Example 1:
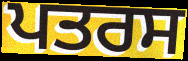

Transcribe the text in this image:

ਪਤਰਸ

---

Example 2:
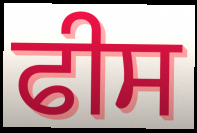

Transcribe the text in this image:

ਫੀਸ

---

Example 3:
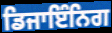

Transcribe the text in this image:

ਡਿਜਾਇੰਨਿਗ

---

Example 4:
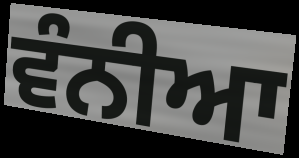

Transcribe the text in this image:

ਵੰਨੀਆ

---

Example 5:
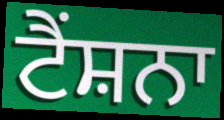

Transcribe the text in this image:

ਟੈਂਸ਼ਨਾ